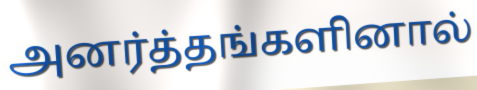
அனர்த்தங்களினால்